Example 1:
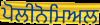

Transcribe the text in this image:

ਪੋਲੀਨੋਮਿਅਲ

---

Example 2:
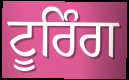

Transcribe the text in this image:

ਟੂਰਿੰਗ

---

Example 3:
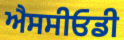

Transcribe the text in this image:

ਐਸਸੀਓਡੀ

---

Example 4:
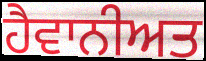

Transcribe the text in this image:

ਹੈਵਾਨੀਅਤ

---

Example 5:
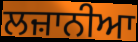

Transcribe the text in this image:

ਲਜ਼ਾਨੀਆ